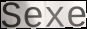
Sexe